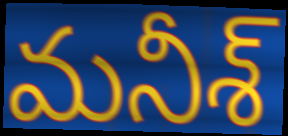
మనీశ్